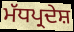
ਮੱਧਪ੍ਰਦੇਸ਼